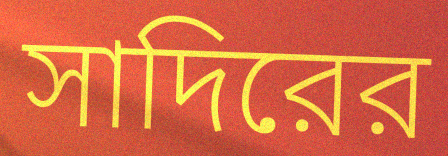
সাদিরের